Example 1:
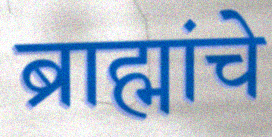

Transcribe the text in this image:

ब्राह्मांचे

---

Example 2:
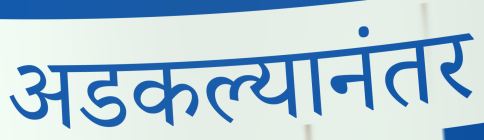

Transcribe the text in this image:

अडकल्यानंतर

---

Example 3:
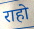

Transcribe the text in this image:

राहो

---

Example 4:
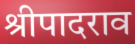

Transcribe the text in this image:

श्रीपादराव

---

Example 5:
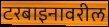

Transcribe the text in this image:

टरबाइनावरील